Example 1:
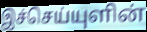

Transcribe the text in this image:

இச்செய்யுளின்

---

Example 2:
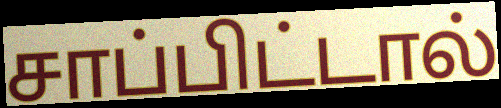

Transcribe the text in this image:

சாப்பிட்டால்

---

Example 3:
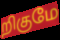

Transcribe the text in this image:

றிகுமே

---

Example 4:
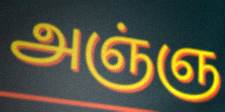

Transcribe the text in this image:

அஞ்ஞ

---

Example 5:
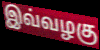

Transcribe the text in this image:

இவ்வழகு